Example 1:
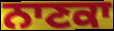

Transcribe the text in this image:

ਨਾਣਕਾ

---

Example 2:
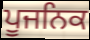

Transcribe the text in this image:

ਪੂਜਨਿਕ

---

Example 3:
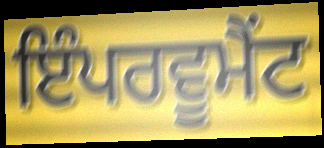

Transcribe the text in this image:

ਇੰਪਰਵੂਮੈਂਟ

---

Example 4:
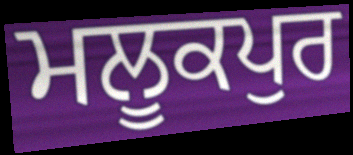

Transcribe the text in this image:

ਮਲੂਕਪੁਰ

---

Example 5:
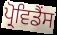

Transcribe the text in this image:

ਪ੍ਰੋਵਿਡੈਂਸ